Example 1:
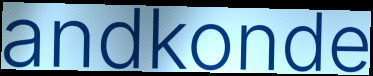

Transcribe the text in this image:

andkonde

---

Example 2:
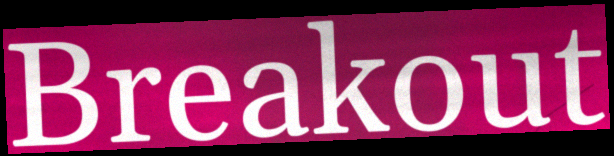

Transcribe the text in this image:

Breakout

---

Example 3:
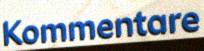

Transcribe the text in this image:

Kommentare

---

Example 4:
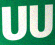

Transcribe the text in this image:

UU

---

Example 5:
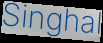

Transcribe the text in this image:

Singhal